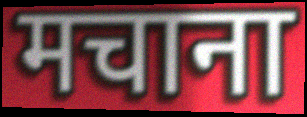
मचाना